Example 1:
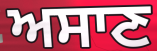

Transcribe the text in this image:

ਅਸਾਣ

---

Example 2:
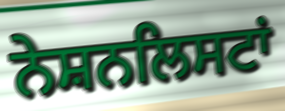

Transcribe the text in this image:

ਨੇਸ਼ਨਲਿਸਟਾਂ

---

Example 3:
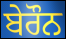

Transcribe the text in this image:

ਬੇਰੌਨ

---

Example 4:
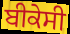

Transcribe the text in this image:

ਬੀਕੇਸੀ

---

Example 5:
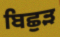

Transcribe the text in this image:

ਬਿਛੁੜ